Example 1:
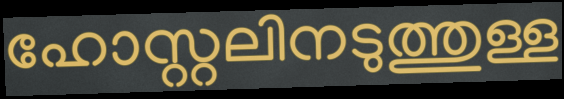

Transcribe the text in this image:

ഹോസ്റ്റലിനടുത്തുള്ള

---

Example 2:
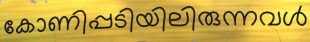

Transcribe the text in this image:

കോണിപ്പടിയിലിരുന്നവൾ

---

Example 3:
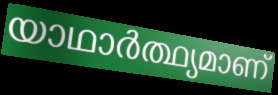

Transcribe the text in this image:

യാഥാർത്ഥ്യമാണ്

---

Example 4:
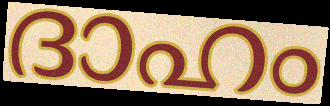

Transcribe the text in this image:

ദാഹം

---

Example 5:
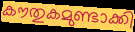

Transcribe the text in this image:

കൗതുകമുണ്ടാക്കി